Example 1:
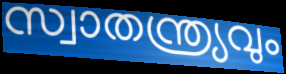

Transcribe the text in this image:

സ്വാതന്ത്ര്യവും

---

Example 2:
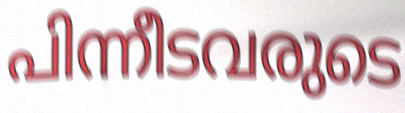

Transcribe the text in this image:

പിന്നീടവരുടെ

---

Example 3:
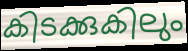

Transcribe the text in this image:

കിടക്കുകിലും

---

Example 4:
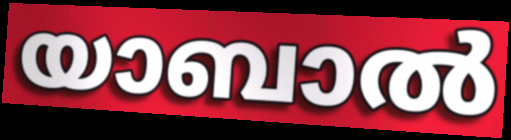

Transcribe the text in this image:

യാബാൽ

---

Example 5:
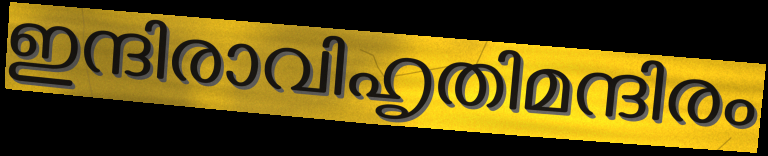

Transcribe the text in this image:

ഇന്ദിരാവിഹൃതിമന്ദിരം